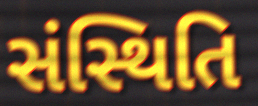
સંસ્થિતિ